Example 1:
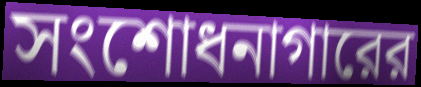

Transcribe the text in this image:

সংশোধনাগারের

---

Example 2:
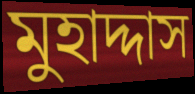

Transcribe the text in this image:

মুহাদ্দাস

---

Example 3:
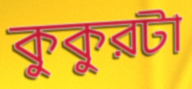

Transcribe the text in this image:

কুকুরটা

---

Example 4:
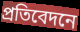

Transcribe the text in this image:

প্রতিবেদনে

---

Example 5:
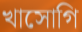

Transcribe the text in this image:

খাসোগি